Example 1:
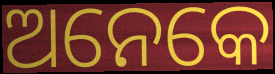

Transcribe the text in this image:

ଅନେକେ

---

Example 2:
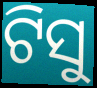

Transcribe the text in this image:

ଟିସୁ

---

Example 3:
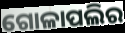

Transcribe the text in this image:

ଗୋଳାପଲିର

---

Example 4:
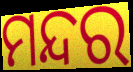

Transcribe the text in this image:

ମନ୍ଦର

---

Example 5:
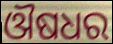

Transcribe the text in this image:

ଔଷଧର